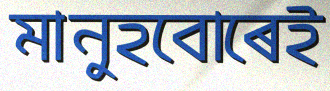
মানুহবোৰেই